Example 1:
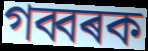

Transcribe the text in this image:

গব্বৰক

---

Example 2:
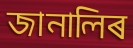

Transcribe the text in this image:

জানালিৰ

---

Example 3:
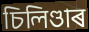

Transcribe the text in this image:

চিলিণ্ডাৰ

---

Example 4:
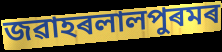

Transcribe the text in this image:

জৱাহৰলালপুৰমৰ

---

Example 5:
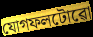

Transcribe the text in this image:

যোগফলটোৱো